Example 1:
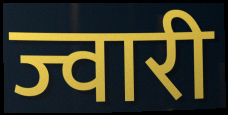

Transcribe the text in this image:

ज्वारी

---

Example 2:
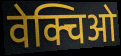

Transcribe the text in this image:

वेक्चिओ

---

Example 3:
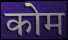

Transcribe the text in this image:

कोम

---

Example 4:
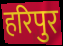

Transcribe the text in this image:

हरिपुर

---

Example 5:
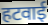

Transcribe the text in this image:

हटवाई